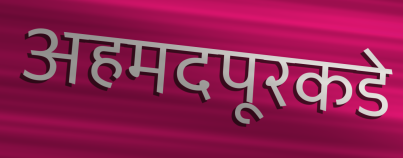
अहमदपूरकडे